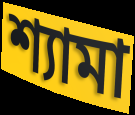
শ্যামা